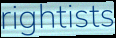
rightists